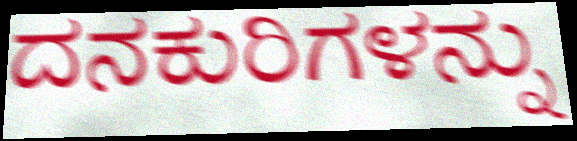
ದನಕುರಿಗಳನ್ನು